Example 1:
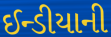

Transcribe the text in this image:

ઈન્ડીયાની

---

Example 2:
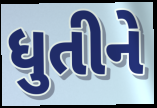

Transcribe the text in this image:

ધુતીને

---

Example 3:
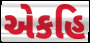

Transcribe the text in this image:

એકહિ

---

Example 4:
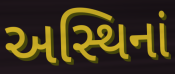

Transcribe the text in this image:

અસ્થિનાં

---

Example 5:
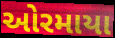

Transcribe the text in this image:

ઓરમાયા